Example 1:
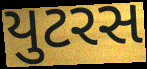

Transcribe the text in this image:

યુટરસ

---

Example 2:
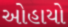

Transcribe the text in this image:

ઓહાયો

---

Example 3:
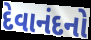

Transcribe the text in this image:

દેવાનંદનો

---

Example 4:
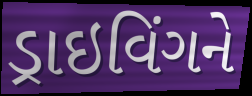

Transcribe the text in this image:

ડ્રાઇવિંગને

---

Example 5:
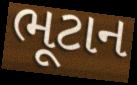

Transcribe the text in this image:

ભૂટાન